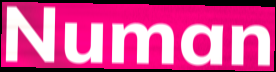
Numan